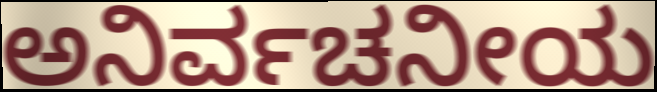
ಅನಿರ್ವಚನೀಯ